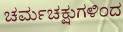
ಚರ್ಮಚಕ್ಷುಗಳಿಂದ